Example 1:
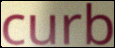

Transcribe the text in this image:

curb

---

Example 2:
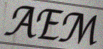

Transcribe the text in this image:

AEM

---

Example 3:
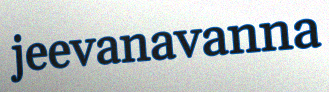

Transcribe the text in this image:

jeevanavanna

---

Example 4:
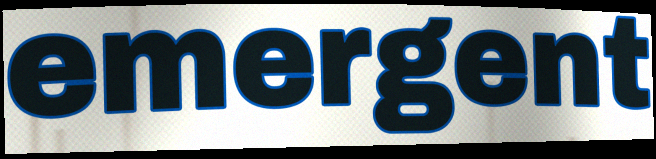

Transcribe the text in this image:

emergent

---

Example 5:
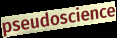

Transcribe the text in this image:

pseudoscience